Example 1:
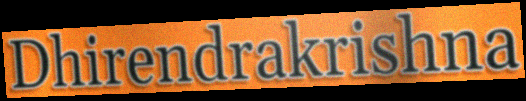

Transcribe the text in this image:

Dhirendrakrishna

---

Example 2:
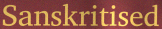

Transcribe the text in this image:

Sanskritised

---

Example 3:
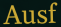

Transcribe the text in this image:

Ausf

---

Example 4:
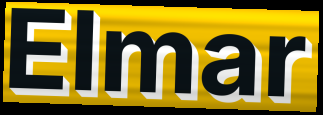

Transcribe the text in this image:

Elmar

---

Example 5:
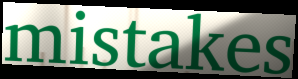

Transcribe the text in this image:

mistakes